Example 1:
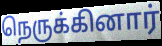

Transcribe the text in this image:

நெருக்கினார்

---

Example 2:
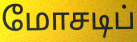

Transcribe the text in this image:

மோசடிப்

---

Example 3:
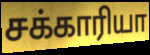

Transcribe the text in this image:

சக்காரியா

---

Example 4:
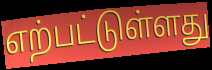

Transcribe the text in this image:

எற்பட்டுள்ளது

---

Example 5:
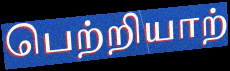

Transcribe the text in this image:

பெற்றியாற்